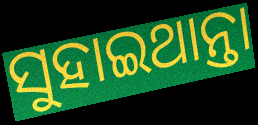
ସୁହାଇଥାନ୍ତା